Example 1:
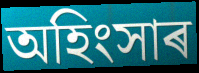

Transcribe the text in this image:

অহিংসাৰ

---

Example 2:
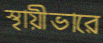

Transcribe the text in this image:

স্থায়ীভাৱে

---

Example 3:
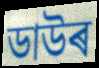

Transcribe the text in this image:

ডাউৰ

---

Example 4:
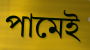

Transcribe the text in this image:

পামেই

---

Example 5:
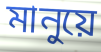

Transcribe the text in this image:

মানুয়ে